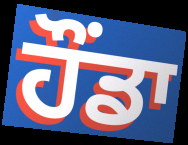
ਹੌਂਡਾ